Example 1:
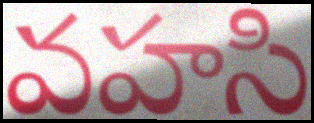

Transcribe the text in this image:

వహసి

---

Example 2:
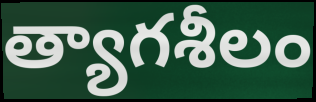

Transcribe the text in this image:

త్యాగశీలం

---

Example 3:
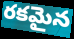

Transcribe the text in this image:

రకమైన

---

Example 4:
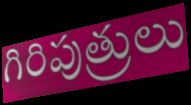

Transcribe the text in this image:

గిరిపుత్రులు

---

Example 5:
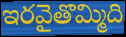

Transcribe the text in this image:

ఇరవైతొమ్మిది